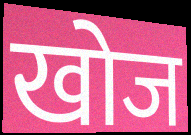
खोज